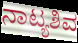
ನಾಟ್ಯಶಿವ